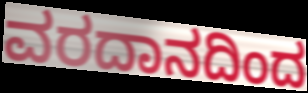
ವರದಾನದಿಂದ